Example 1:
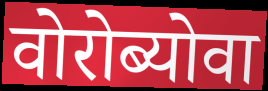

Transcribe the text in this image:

वोरोब्योवा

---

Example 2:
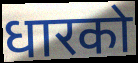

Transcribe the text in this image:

धारको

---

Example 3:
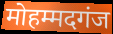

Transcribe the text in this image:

मोहम्मदगंज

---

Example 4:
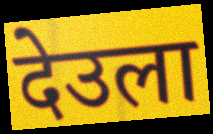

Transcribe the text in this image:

देउला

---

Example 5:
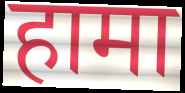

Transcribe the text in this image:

हामा